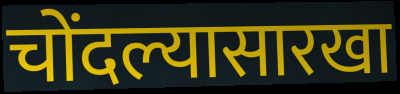
चोंदल्यासारखा